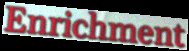
Enrichment